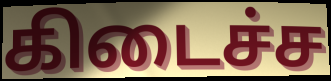
கிடைச்ச